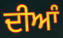
ਦੀਆੰ